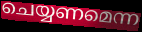
ചെയ്യണമെന്ന